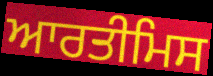
ਆਰਤੀਮਿਸ